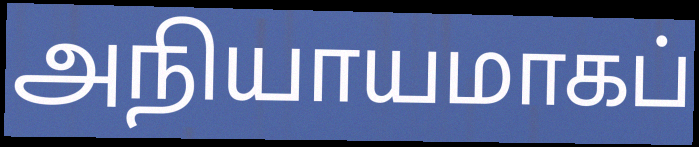
அநியாயமாகப்